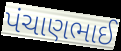
પંચાણભાઈ